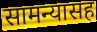
सामन्यासह